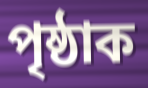
পৃষ্ঠাক